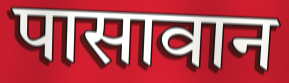
पासावान